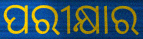
ପରୀକ୍ଷାର